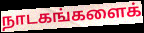
நாடகங்களைக்